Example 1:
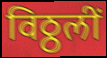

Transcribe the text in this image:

विठ्ठलीं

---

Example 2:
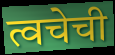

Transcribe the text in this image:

त्वचेची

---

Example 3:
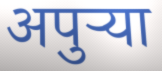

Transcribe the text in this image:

अपुर्‍या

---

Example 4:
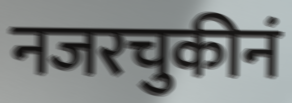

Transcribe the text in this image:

नजरचुकीनं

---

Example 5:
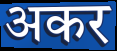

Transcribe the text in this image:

अकर